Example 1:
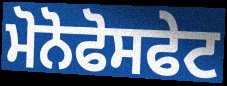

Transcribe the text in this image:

ਮੋਨੋਫੋਸਫੇਟ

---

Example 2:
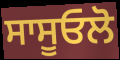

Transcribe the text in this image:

ਸਾਸੂਓਲੋ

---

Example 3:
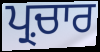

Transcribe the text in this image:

ਪ਼੍ਰਚਾਰ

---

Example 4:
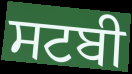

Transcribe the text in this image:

ਸਟਬੀ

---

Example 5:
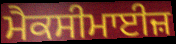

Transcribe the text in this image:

ਮੈਕਸੀਮਾਈਜ਼